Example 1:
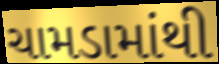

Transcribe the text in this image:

ચામડામાંથી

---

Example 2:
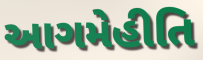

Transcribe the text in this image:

આગમેહીતિ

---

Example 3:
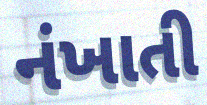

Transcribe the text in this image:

નંખાતી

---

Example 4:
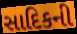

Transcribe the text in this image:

સાદિકની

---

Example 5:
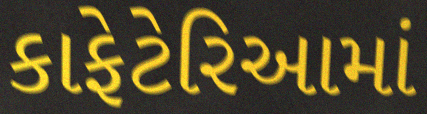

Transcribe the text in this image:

કાફેટેરિઆમાં